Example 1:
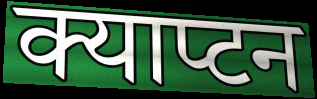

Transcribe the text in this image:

क्याप्टन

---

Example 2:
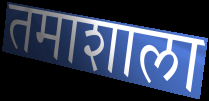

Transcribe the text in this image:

तमाशाला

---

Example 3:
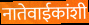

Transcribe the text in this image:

नातेवाईकांशी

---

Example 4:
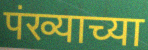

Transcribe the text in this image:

पंख्याच्या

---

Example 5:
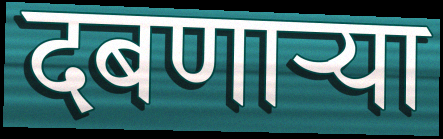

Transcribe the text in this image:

दबणाऱ्या